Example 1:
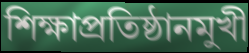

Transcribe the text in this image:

শিক্ষাপ্রতিষ্ঠানমুখী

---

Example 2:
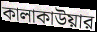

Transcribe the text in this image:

কালাকাউয়ার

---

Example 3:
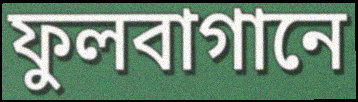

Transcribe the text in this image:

ফুলবাগানে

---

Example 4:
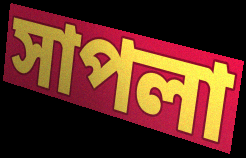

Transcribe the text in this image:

সাপলা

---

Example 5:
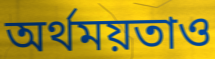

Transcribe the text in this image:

অর্থময়তাও